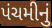
પંચમીનું